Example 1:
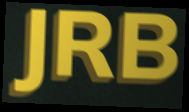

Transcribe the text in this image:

JRB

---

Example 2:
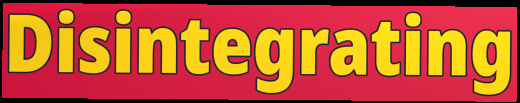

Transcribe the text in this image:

Disintegrating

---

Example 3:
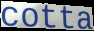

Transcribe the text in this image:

cotta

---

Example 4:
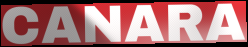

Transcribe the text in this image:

CANARA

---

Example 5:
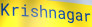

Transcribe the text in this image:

Krishnagar